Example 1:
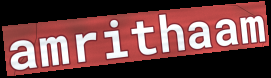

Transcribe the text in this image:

amrithaam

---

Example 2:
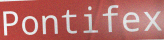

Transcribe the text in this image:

Pontifex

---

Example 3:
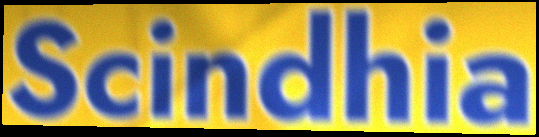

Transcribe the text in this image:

Scindhia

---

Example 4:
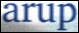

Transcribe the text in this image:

arup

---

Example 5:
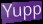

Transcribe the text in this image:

Yupp